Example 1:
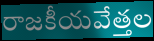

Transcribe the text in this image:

రాజకీయవేత్తల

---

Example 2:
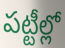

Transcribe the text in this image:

పట్టీల్లో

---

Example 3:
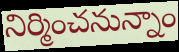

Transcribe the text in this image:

నిర్మించనున్నాం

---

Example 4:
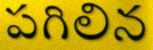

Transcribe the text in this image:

పగిలిన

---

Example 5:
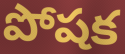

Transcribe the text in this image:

పోషక